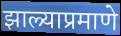
झाल्याप्रमाणे